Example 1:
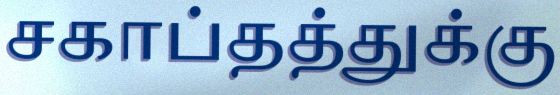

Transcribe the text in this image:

சகாப்தத்துக்கு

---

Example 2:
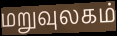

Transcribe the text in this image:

மறுவுலகம்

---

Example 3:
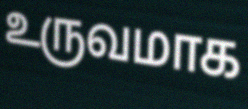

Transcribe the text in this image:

உருவமாக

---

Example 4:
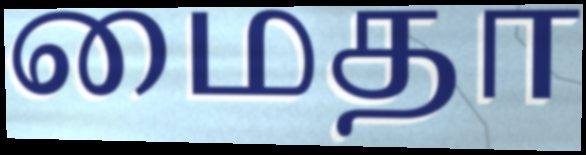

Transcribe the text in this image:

மைதா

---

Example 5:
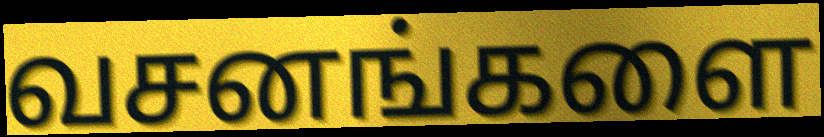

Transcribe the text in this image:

வசனங்களை